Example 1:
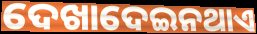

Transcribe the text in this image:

ଦେଖାଦେଇନଥାଏ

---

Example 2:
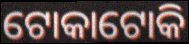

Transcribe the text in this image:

ଟୋକାଟୋକି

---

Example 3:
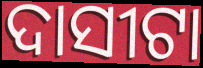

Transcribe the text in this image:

ଦାସୀଟା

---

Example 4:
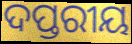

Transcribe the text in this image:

ଦପ୍ତରୀୟ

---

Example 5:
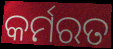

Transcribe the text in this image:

କର୍ମରତ